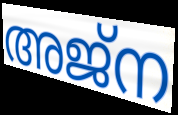
അജ്ന